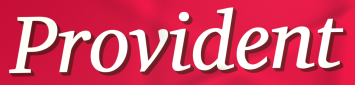
Provident